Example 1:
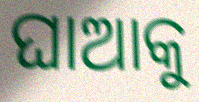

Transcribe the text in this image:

ଘାଆକୁ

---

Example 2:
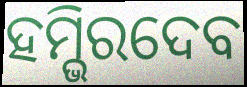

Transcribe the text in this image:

ହମ୍ଭିରଦେବ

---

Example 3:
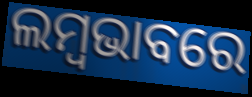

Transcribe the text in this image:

ଲମ୍ବଭାବରେ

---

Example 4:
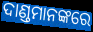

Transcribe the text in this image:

ଦାଣ୍ଡମାନଙ୍କରେ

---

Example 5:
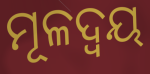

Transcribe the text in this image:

ମୂଳଦ୍ୱୟ